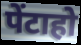
पेंटाहो